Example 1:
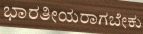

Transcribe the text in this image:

ಭಾರತೀಯರಾಗಬೇಕು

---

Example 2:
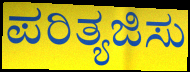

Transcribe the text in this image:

ಪರಿತ್ಯಜಿಸು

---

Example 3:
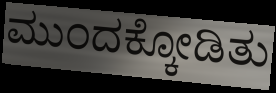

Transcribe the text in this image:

ಮುಂದಕ್ಕೋಡಿತು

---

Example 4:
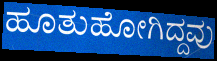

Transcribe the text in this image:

ಹೂತುಹೋಗಿದ್ದವು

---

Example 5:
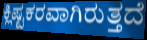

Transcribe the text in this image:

ಕ್ಲಿಷ್ಟಕರವಾಗಿರುತ್ತದೆ